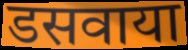
डसवाया